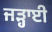
ਜੜ੍ਹਾਈ